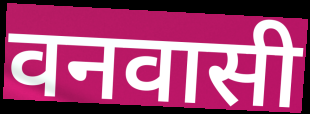
वनवासी